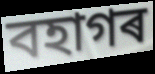
বহাগৰ